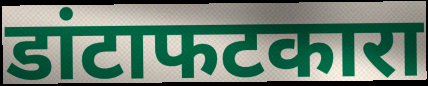
डांटाफटकारा